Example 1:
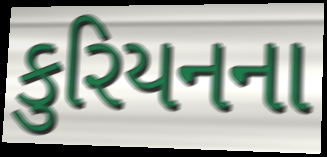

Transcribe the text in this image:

કુરિયનના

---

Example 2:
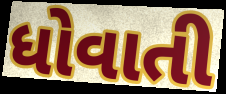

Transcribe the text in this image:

ધોવાતી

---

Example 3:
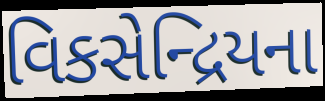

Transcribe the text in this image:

વિકસેન્દ્રિયના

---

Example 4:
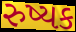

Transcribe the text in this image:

રુષ્યક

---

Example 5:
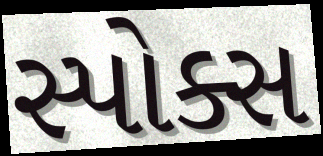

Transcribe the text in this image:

સ્પોક્સ